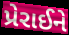
પ્રેરાઈને